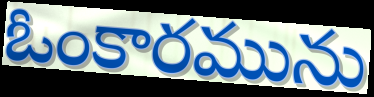
ఓంకారమును